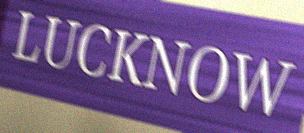
LUCKNOW